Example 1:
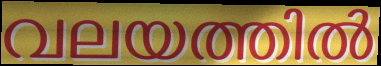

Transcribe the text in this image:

വലയത്തിൽ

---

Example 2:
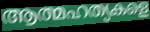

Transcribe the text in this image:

ആത്മഹത്യകളെ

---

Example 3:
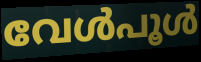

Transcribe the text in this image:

വേൾപൂൾ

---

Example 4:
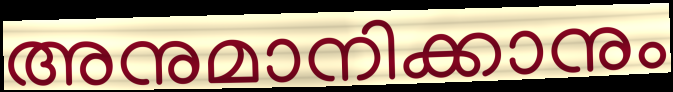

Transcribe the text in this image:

അനുമാനിക്കാനും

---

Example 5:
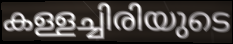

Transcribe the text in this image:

കള്ളച്ചിരിയുടെ